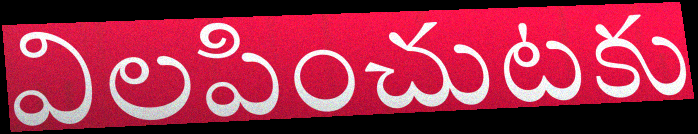
విలపించుటకు